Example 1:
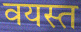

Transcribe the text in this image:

वयस्त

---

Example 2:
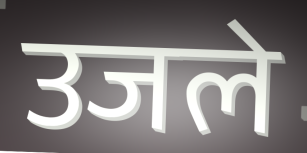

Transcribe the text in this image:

उजले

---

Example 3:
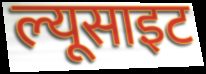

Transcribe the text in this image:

ल्यूसाइट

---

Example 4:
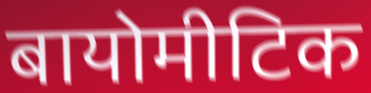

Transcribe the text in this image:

बायोमीटिक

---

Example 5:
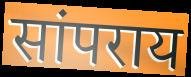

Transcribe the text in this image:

सांपराय